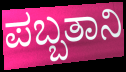
ಪಬ್ಬತಾನಿ